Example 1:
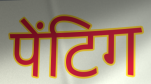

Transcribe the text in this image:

पेंटिग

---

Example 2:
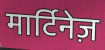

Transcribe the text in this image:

मार्टिनेज़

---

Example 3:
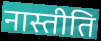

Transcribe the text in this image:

नास्तीति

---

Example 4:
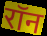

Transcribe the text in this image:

रॉन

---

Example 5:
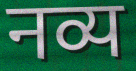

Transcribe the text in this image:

नव्य